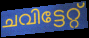
ചവിട്ടേറ്റ്